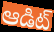
ఆడిట్